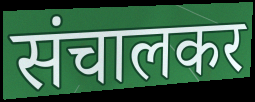
संचालकर